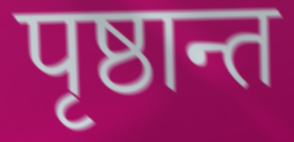
पृष्ठान्त